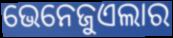
ଭେନେଜୁଏଲାର